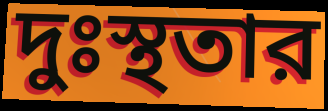
দুঃস্থতার